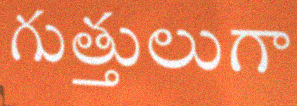
గుత్తులుగా